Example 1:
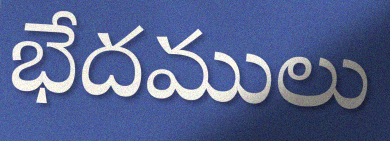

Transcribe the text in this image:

భేదములు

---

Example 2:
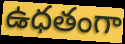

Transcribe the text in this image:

ఉధతంగా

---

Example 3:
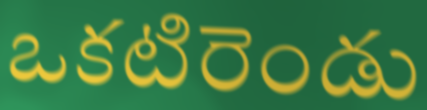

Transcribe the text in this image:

ఒకటిరెండు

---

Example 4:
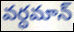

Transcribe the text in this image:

వర్ధమాన్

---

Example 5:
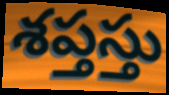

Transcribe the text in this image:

శప్తస్తు